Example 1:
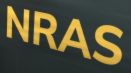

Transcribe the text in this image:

NRAS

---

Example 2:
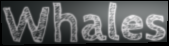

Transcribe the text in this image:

Whales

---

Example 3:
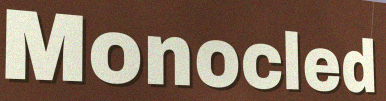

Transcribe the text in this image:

Monocled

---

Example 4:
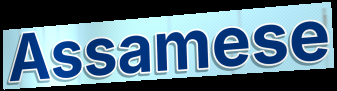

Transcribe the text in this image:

Assamese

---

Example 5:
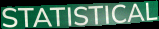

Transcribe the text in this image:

STATISTICAL